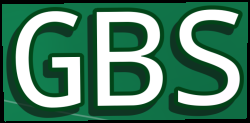
GBS